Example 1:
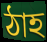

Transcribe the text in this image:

ঠাহ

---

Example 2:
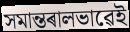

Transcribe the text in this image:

সমান্তৰালভাৱেই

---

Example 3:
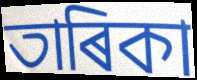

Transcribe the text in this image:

তাৰিকা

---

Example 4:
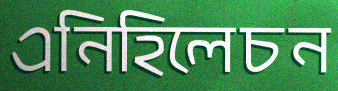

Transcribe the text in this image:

এনিহিলেচন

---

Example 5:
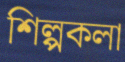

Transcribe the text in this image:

শিল্পকলা